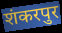
शंकरपुर